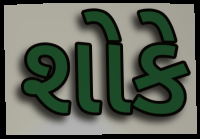
શોકે